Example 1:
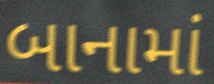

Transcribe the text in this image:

બાનામાં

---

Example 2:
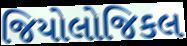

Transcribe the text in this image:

જિયોલોજિકલ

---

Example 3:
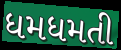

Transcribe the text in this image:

ધમધમતી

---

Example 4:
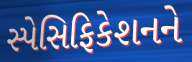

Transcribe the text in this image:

સ્પેસિફિકેશનને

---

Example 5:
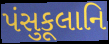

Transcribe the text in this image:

પંસુકૂલાનિ